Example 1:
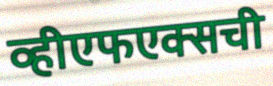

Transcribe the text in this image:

व्हीएफएक्सची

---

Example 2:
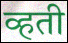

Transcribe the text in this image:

व्हती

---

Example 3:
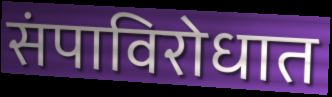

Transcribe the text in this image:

संपाविरोधात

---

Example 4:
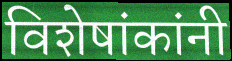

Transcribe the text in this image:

विशेषांकांनी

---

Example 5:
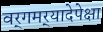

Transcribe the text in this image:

वर्गमर्यादेपेक्षा